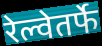
रेल्वेतर्फे